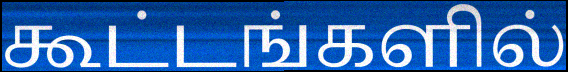
கூட்டங்களில்